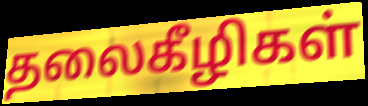
தலைகீழிகள்